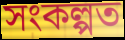
সংকল্পত